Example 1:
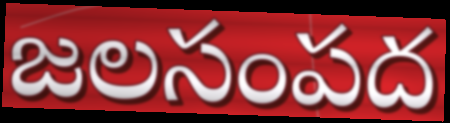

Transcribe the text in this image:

జలసంపద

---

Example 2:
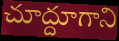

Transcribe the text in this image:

చూద్దూగాని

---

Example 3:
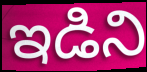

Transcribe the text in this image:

ఇడిని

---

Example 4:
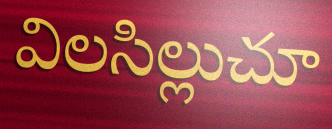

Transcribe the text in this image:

విలసిల్లుచూ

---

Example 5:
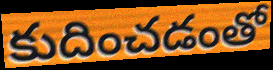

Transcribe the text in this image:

కుదించడంతో